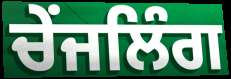
ਚੇਂਜਲਿੰਗ